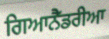
ਗਿਆਨੈਂਡਰੀਆ